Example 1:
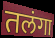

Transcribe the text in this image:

तलंगा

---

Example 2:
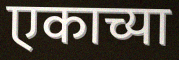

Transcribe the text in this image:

एकाच्या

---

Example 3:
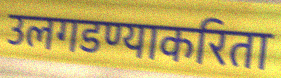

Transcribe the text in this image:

उलगडण्याकरिता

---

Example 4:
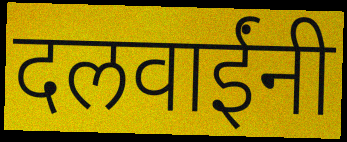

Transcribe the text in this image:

दलवाईंनी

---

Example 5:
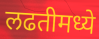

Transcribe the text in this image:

लढतीमध्ये